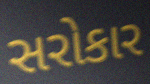
સરોકાર